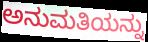
ಅನುಮತಿಯನ್ನು